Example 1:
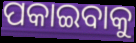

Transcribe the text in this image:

ପକାଇବାକୁ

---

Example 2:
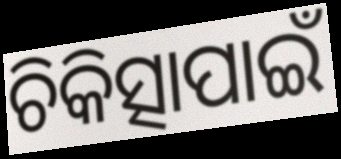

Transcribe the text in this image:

ଚିକିତ୍ସାପାଇଁ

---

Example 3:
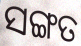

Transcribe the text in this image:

ସଙ୍ଗତ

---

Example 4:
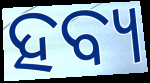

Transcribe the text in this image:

ହବ୍ୟ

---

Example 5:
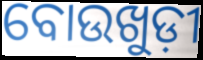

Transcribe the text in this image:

ବୋଉଖୁଡ଼ୀ